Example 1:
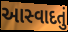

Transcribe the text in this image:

આસ્વાદતું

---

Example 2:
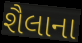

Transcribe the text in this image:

શૈલાના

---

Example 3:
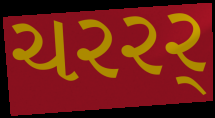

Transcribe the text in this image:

ચરરર્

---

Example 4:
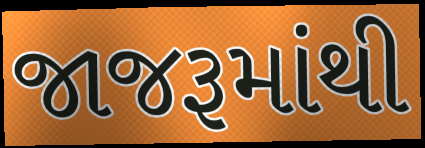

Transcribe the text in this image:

જાજરૂમાંથી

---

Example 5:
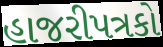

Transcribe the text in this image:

હાજરીપત્રકો